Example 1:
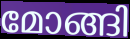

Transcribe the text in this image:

മോങ്ങി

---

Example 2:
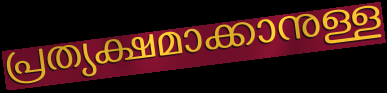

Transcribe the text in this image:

പ്രത്യക്ഷമാക്കാനുള്ള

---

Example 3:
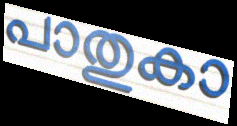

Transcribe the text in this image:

പാതുകാ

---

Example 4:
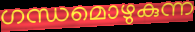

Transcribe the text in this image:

ഗന്ധമൊഴുകുന്ന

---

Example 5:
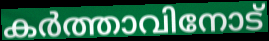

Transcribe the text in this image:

കർത്താവിനോട്